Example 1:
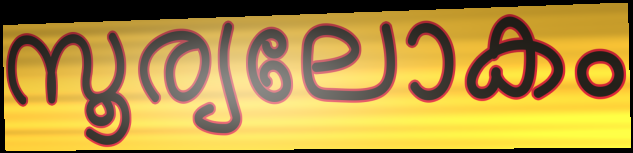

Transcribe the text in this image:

സൂര്യലോകം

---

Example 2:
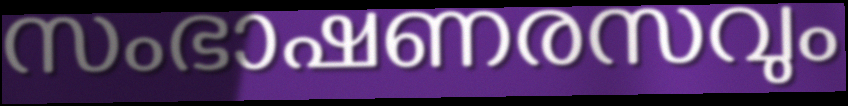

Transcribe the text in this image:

സംഭാഷണരസവും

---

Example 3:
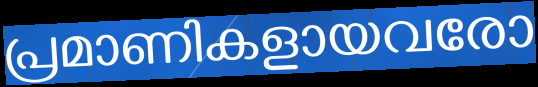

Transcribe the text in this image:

പ്രമാണികളായവരോ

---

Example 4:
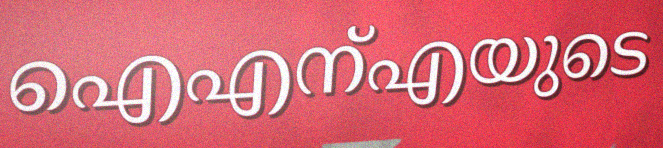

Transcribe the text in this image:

ഐഎന്എയുടെ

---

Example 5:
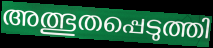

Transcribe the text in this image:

അത്ഭുതപ്പെടുത്തി